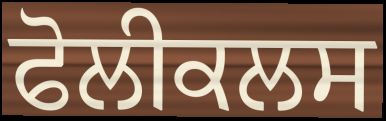
ਫੋਲੀਕਲਸ